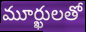
మూర్ఖులతో